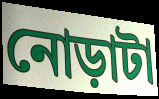
নোড়াটা